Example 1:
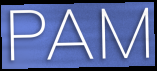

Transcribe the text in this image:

PAM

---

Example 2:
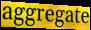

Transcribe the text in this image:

aggregate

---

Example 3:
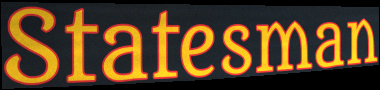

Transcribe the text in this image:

Statesman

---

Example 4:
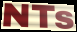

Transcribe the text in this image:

NTs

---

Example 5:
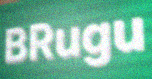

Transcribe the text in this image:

BRugu